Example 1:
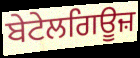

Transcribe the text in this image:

ਬੇਟੇਲਗਿਊਜ਼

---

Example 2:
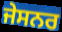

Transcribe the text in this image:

ਜੇਸਨਰ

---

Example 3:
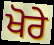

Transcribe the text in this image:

ਖੋਰੇ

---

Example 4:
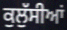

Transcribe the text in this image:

ਕੁਲੁੱਸੀਆਂ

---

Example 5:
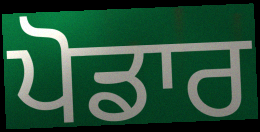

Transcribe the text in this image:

ਪੋਡਾਰ